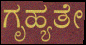
ಗೃಹ್ಯತೇ